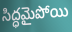
సిద్ధమైపోయి